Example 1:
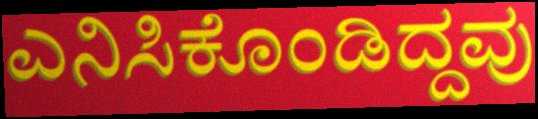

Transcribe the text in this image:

ಎನಿಸಿಕೊಂಡಿದ್ದವು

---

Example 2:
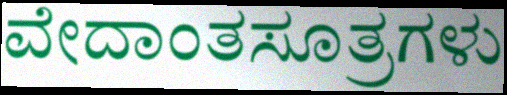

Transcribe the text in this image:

ವೇದಾಂತಸೂತ್ರಗಳು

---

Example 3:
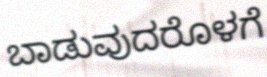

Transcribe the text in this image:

ಬಾಡುವುದರೊಳಗೆ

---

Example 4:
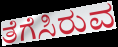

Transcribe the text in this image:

ತೆಗೆಸಿರುವ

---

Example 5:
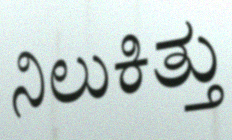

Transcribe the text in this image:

ನಿಲುಕಿತ್ತು